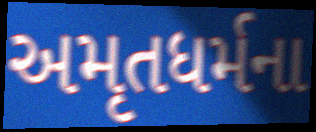
અમૃતધર્મના